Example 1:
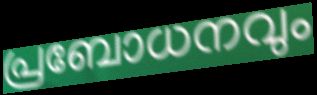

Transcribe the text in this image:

പ്രബോധനവും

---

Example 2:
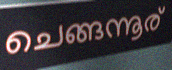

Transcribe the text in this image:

ചെങ്ങന്നൂര്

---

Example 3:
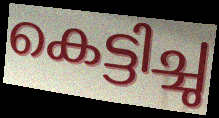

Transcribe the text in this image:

കെട്ടിച്ചു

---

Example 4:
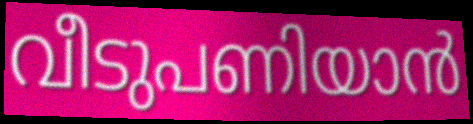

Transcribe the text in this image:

വീടുപണിയാൻ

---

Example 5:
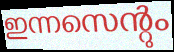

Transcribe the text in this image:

ഇന്നസെന്റും